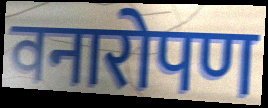
वनारोपण